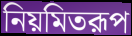
নিয়মিতরূপ